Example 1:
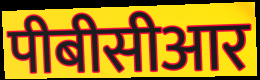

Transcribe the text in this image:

पीबीसीआर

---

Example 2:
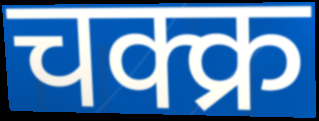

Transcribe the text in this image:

चक्क्र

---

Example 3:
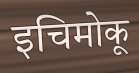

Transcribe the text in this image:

इचिमोकू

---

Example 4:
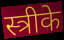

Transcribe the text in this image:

स्त्रीके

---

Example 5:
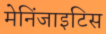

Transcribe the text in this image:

मेनिंजाइटिस